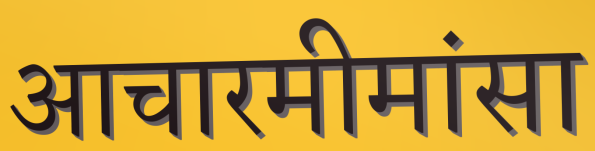
आचारमीमांसा